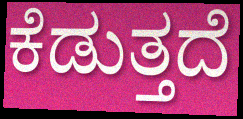
ಕೆಡುತ್ತದೆ